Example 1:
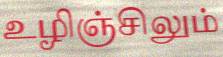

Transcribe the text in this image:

உழிஞ்சிலும்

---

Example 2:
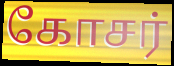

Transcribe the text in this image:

கோசர்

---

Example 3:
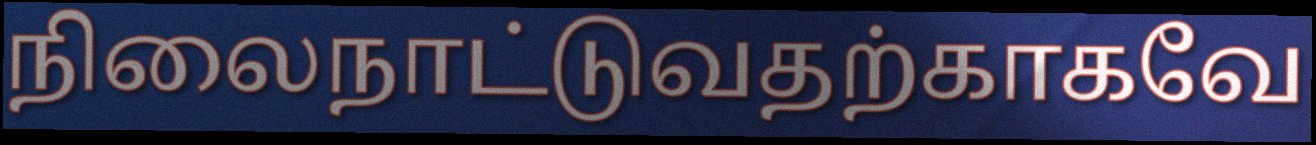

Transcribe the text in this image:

நிலைநாட்டுவதற்காகவே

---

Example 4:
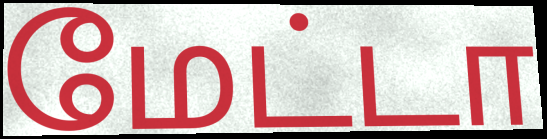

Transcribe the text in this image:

மேட்டா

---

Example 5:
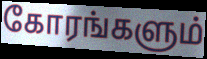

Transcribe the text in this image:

கோரங்களும்